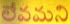
లేవమని